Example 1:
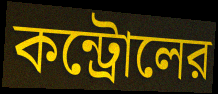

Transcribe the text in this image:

কন্ট্রোলের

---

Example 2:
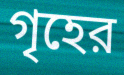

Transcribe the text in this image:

গৃহের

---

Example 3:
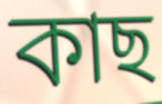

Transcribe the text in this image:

কাছ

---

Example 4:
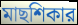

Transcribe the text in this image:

মাছশিকার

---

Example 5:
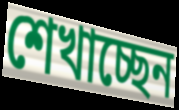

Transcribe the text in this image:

শেখাচ্ছেন